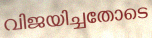
വിജയിച്ചതോടെ